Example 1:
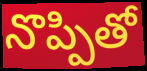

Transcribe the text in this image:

నొప్పితో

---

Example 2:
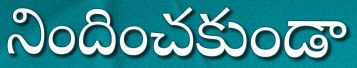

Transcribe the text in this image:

నిందించకుండా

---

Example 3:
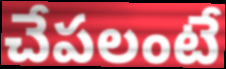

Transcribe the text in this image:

చేపలంటే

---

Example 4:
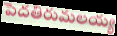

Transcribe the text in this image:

పెదతిరుమలయ్య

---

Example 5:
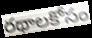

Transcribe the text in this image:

రథాలకోసం